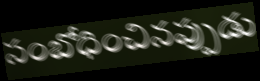
సంబోధించినప్పుడు